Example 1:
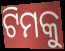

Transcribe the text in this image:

ଟିମକୁ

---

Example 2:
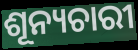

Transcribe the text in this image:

ଶୂନ୍ୟଚାରୀ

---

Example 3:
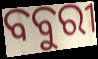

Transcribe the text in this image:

ବବୁରୀ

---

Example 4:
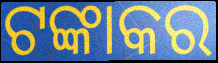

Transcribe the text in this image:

ଟଙ୍କାକର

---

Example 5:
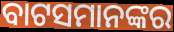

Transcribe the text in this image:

ବାଟସମାନଙ୍କର